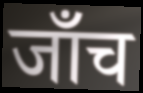
जाँच